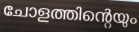
ചോളത്തിന്റെയും